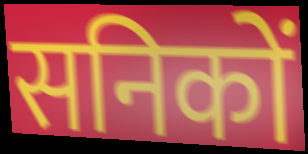
सनिकों